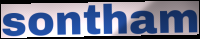
sontham